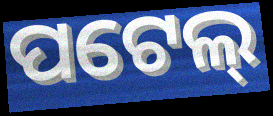
ପଟେଲ୍